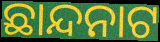
ଛାନ୍ଦନାଟ